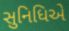
સુનિધિએ